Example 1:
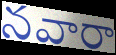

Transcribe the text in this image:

నవారా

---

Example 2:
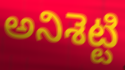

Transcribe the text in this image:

అనిశెట్టి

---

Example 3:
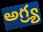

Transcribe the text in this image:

అగ్ర్య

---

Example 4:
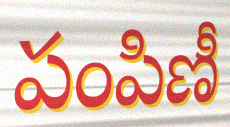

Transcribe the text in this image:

పంపిణీ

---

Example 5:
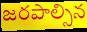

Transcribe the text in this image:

జరపాల్సిన